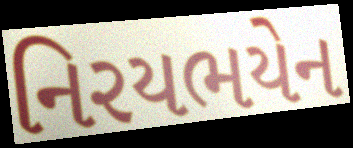
નિરયભયેન